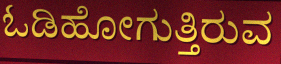
ಓಡಿಹೋಗುತ್ತಿರುವ